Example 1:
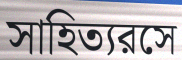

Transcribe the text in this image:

সাহিত্যরসে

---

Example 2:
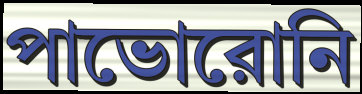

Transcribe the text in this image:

পাভোরোনি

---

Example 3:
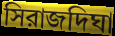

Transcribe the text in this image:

সিরাজদিঘা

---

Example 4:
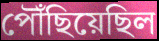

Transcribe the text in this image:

পৌঁছিয়েছিল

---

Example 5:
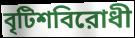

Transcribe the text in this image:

বৃটিশবিরোধী